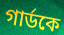
গার্ডকে